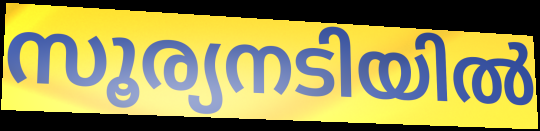
സൂര്യനടിയിൽ